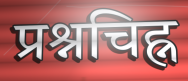
प्रश्नचिह्न